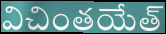
విచింతయేత్